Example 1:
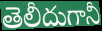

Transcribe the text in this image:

తెలీదుగానీ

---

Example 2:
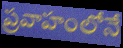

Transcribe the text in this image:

ప్రవాహంలోనే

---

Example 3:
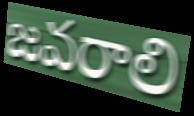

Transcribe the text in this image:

జవరాలి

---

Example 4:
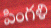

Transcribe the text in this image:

పింగళి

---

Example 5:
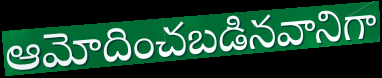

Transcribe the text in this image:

ఆమోదించబడినవానిగా